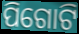
ପିଗୋଟି